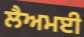
ਲੈਅਮਈ